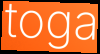
toga